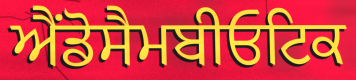
ਐਂਡੋਸੈਮਬੀਓਟਿਕ